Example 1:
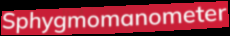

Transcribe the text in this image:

Sphygmomanometer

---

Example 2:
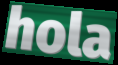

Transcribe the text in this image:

hola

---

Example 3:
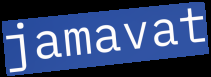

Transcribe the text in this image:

jamavat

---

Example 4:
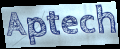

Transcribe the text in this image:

Aptech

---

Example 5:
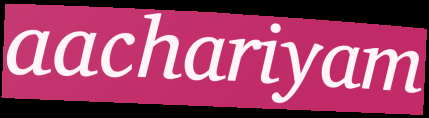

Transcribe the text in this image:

aachariyam